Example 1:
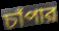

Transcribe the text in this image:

চাঁপার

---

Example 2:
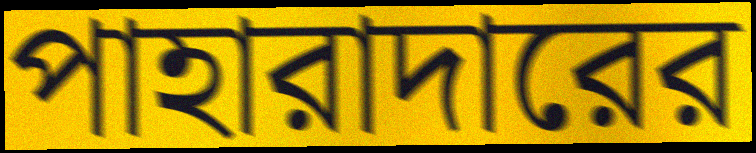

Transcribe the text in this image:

পাহারাদারের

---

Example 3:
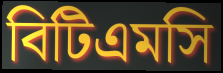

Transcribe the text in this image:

বিটিএমসি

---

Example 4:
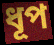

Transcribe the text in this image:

ধূপ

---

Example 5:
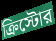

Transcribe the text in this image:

ক্রিস্টোর